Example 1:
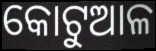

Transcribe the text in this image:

କୋଟୁଆଳ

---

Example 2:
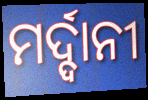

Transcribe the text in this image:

ମର୍ଦ୍ଦାନୀ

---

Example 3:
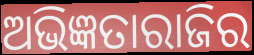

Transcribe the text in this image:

ଅଭିଜ୍ଞତାରାଜିର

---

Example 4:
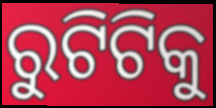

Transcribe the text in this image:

ରୁଟିଟିକୁ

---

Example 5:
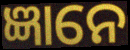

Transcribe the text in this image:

ଜ୍ଞାନେ